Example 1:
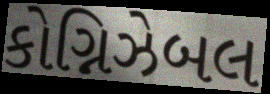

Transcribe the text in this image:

કોગ્નિઝેબલ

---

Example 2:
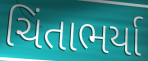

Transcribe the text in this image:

ચિંતાભર્યા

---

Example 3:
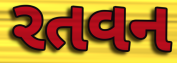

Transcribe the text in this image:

રતવન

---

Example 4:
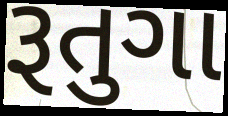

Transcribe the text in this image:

રૂતુગા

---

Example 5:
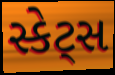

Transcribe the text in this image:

સ્કેટ્સ